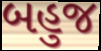
બહુજ